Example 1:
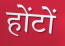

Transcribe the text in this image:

होंटों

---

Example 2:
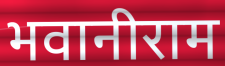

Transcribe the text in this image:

भवानीराम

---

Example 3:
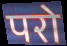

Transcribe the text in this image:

परो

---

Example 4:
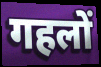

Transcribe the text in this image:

गहलों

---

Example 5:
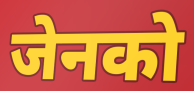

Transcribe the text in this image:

जेनको